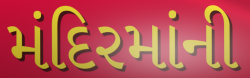
મંદિરમાંની